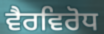
ਵੈਰਵਿਰੋਧ